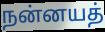
நன்னயத்